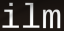
ilm